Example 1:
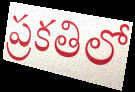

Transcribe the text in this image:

ప్రకతిలో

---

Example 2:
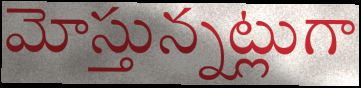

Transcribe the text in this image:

మోస్తున్నట్లుగా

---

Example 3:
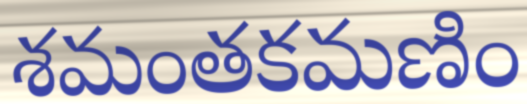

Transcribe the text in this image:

శమంతకమణిం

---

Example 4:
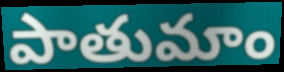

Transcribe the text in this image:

పాతుమాం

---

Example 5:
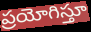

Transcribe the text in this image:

ప్రయోగిస్తూ